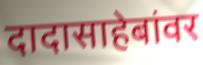
दादासाहेबांवर